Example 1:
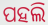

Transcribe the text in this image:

ପହଲି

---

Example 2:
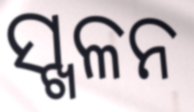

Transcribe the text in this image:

ସ୍ଖଳନ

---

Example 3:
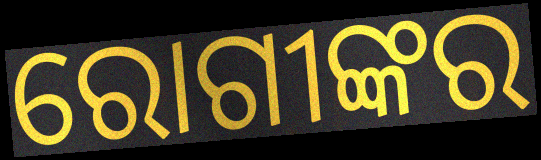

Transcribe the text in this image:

ରୋଗୀଙ୍କର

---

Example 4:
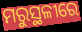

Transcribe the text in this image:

ମରୁସ୍ଥଳୀରେ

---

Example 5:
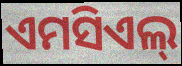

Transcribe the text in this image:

ଏମସିଏଲ୍